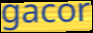
gacor